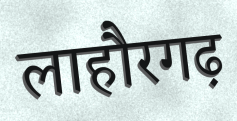
लाहौरगढ़